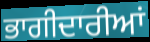
ਭਾਗੀਦਾਰੀਆਂ